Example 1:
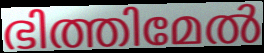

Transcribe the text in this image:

ഭിത്തിമേൽ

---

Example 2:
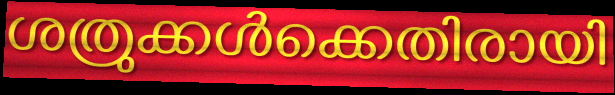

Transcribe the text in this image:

ശത്രുക്കൾക്കെതിരായി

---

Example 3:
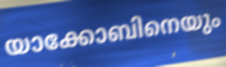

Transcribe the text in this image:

യാക്കോബിനെയും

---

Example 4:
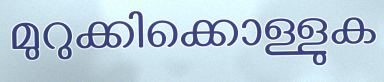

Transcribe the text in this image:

മുറുക്കിക്കൊള്ളുക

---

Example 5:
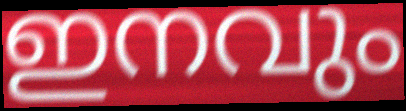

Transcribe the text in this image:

ഇനവും